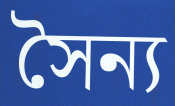
সৈন্য